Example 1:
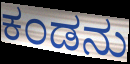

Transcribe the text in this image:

ಕಂಡನು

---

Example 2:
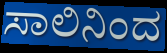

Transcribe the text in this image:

ಸಾಲಿನಿಂದ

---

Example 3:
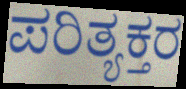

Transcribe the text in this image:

ಪರಿತ್ಯಕ್ತರ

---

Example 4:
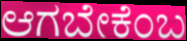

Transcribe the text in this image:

ಆಗಬೇಕೆಂಬ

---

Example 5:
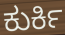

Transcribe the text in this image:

ಕುರ್ಕಿ